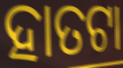
ହାତଟା